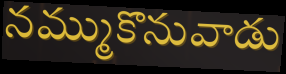
నమ్ముకొనువాడు